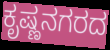
ಕೃಷ್ಣನಗರದ